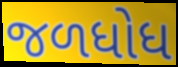
જળધોધ